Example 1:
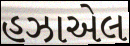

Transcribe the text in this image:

હઝાએલ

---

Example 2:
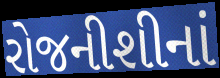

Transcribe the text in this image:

રોજનીશીનાં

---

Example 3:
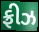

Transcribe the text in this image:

ફ્રીઝ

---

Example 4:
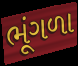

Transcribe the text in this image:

ભૂંગળા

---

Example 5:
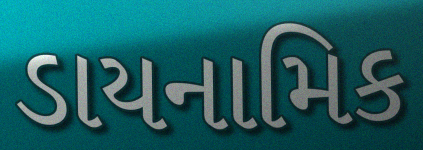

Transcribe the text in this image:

ડાયનામિક